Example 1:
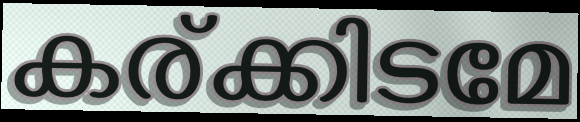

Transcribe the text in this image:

കര്ക്കിടമേ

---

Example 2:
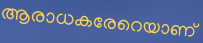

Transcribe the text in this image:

ആരാധകരേറെയാണ്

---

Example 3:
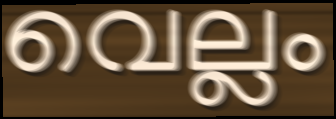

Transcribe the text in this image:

വെല്ലം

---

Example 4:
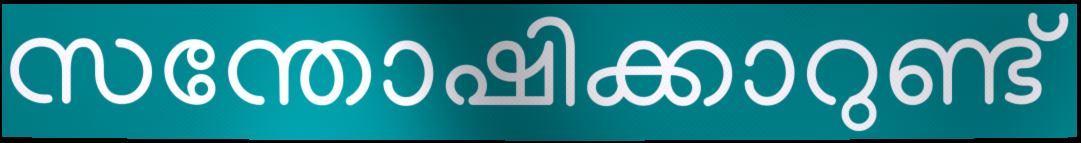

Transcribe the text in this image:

സന്തോഷിക്കാറുണ്ട്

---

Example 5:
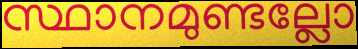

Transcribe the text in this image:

സ്ഥാനമുണ്ടല്ലോ